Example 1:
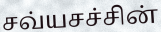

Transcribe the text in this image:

சவ்யசச்சின்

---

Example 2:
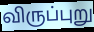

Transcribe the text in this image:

விருப்புறு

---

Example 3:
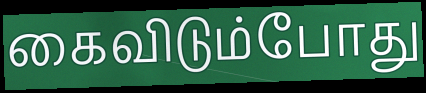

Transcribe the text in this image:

கைவிடும்போது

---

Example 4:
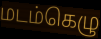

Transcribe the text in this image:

மடம்கெழு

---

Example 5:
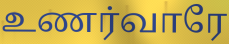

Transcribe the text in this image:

உணர்வாரே